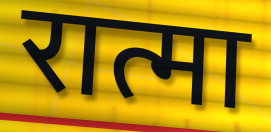
रात्मा